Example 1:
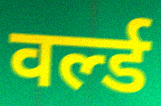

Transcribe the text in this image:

वर्ल्ड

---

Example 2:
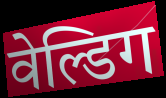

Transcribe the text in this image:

वेल्डिग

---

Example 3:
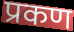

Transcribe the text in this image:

प्रकण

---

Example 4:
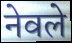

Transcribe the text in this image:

नेवले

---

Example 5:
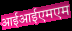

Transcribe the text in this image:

आईआईएमएम